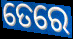
ତେରେ